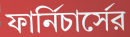
ফার্নিচার্সের